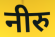
नीरु